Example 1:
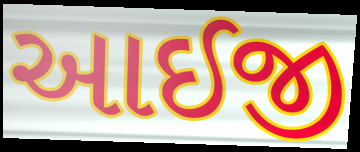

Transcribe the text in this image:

આઈજી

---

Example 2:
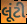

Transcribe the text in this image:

લૂંટી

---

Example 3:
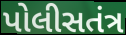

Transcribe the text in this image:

પોલીસતંત્ર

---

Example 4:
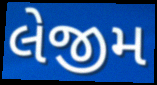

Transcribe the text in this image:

લેજીમ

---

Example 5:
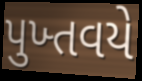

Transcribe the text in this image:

પુખ્તવયે